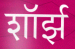
शॉर्झ